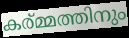
കര്മ്മത്തിനും